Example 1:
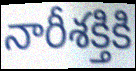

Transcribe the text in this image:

నారీశక్తికి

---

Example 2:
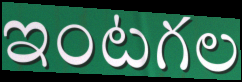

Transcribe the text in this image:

ఇంటగల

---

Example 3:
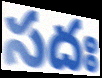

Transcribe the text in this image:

సదః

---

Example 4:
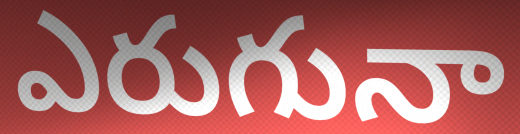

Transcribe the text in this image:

ఎరుగునా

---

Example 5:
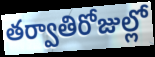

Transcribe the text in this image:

తర్వాతిరోజుల్లో